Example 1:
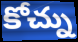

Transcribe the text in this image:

కోచ్ను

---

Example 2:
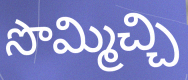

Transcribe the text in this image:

సొమ్మిచ్చి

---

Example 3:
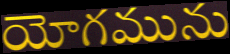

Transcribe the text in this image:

యోగమును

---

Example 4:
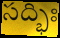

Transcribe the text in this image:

సద్భిః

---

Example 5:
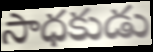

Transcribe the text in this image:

సాధకుడు